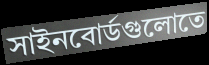
সাইনবোর্ডগুলোতে